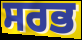
ਸਰਭ